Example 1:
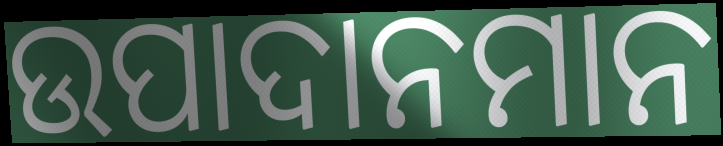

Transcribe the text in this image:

ଉପାଦାନମାନ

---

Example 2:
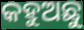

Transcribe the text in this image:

କହୁଅଛୁ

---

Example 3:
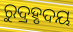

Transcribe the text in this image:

ରୁଦ୍ରହୃଦୟ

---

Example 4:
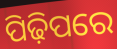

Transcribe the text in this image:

ପିଢ଼ିପରେ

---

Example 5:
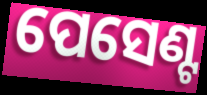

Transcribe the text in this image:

ପେସେଣ୍ଟ